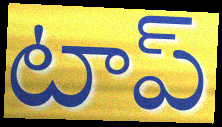
టాప్